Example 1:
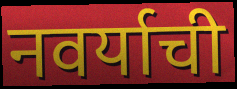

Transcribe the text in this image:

नवर्याची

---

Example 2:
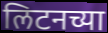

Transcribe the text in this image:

लिटनच्या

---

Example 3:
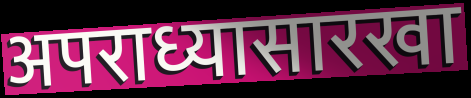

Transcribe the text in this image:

अपराध्यासारखा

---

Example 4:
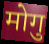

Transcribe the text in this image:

मोगु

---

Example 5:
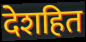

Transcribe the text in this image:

देशहित